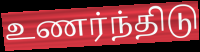
உணர்ந்திடு